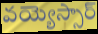
వయ్యెస్సార్